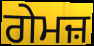
ਗੇਮਜ਼